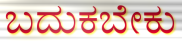
ಬದುಕಬೇಕು